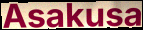
Asakusa